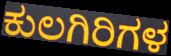
ಕುಲಗಿರಿಗಳ